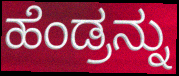
ಹೆಂಡ್ರನ್ನು